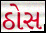
ઠોસ